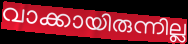
വാക്കായിരുന്നില്ല